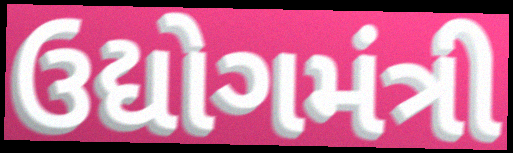
ઉદ્યોગમંત્રી